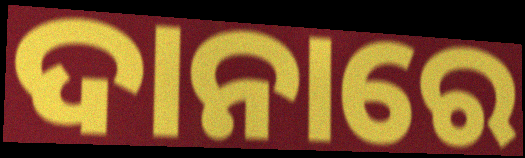
ଦାନାରେ